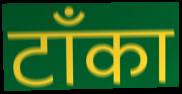
टाँका